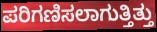
ಪರಿಗಣಿಸಲಾಗುತ್ತಿತ್ತು